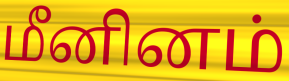
மீனினம்